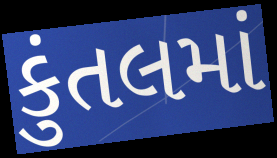
કુંતલમાં